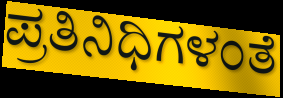
ಪ್ರತಿನಿಧಿಗಳಂತೆ